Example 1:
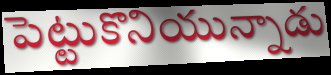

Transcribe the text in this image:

పెట్టుకొనియున్నాడు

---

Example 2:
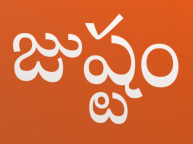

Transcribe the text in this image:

జుష్టం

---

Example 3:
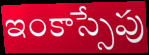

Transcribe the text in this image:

ఇంకాస్సేపు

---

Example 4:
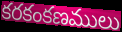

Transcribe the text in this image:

కరకంకణములు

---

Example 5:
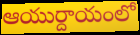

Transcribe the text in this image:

ఆయుర్దాయంలో